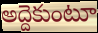
అద్దెకుంటూ